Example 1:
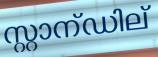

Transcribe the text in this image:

സ്റ്റാന്ഡില്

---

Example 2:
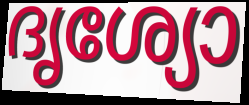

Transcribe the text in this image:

ദൃശ്യോ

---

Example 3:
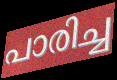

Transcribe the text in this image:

പാരിച്ച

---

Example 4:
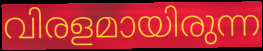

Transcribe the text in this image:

വിരളമായിരുന്ന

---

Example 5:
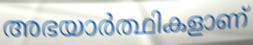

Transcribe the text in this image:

അഭയാർത്ഥികളാണ്